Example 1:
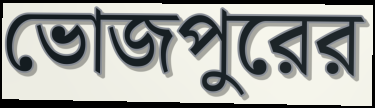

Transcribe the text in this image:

ভোজপুরের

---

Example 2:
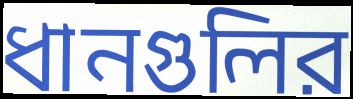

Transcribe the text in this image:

ধানগুলির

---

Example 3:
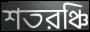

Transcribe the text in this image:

শতরঞ্চি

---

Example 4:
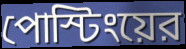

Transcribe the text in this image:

পোস্টিংয়ের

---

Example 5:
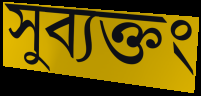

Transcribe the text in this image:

সুব্যক্তং